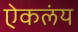
ऐकलंय